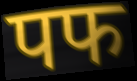
पफ